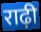
राढ़ी